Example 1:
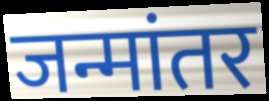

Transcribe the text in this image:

जन्मांतर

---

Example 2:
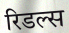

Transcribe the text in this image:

रिडल्स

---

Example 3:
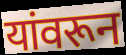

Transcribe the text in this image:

यांवरून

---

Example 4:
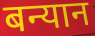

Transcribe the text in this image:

बन्यान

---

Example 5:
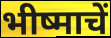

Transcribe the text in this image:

भीष्माचें